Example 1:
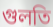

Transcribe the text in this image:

গুলতি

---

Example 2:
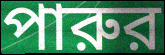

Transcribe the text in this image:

পারুর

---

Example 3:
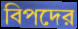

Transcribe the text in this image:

বিপদের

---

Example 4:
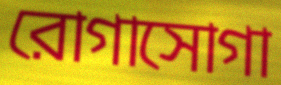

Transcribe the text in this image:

রোগাসোগা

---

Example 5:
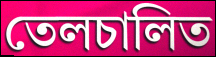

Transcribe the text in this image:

তেলচালিত